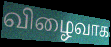
விழைவாக